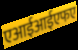
एआईआईएफए